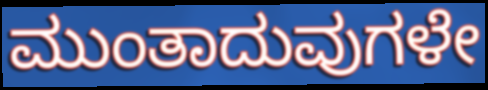
ಮುಂತಾದುವುಗಳೇ